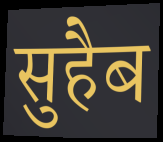
सुहैब